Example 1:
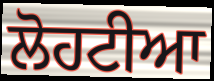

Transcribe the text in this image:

ਲੋਹਟੀਆ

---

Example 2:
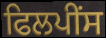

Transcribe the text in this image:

ਫਿਲਪੀਂਸ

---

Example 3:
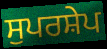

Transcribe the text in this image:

ਸੁਪਰਸ਼ੇਪ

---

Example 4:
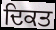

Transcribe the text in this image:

ਦਿਕਤ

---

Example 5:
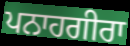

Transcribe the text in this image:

ਪਨਾਹਗੀਰਾ